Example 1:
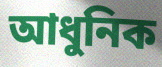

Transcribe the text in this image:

আধুনিক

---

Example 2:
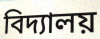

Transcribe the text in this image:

বিদ্যালয়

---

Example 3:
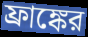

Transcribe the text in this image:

ফ্রাঙ্কের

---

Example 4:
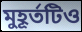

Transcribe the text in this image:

মুহূর্তটিও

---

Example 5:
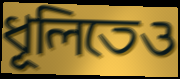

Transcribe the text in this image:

ধূলিতেও